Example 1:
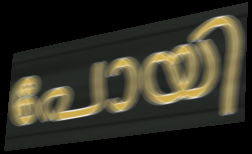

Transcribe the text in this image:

പോയി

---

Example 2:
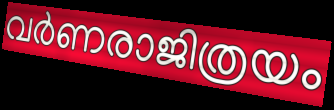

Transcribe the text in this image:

വർണരാജിത്രയം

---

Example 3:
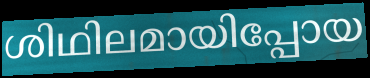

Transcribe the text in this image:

ശിഥിലമായിപ്പോയ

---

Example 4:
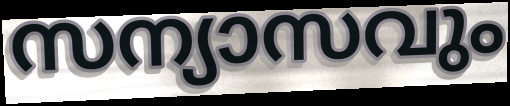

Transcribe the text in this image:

സന്യാസവും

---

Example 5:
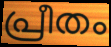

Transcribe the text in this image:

പ്രീതം